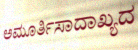
ಅಮೂರ್ತಿಸಾದಾಖ್ಯದ